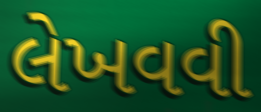
લેખવવી